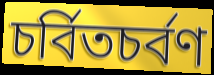
চর্বিতচর্বণ